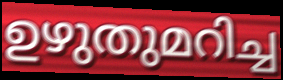
ഉഴുതുമറിച്ച